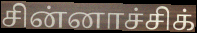
சின்னாச்சிக்